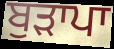
ਬੁੜਾਪਾ